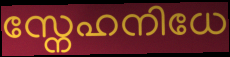
സ്നേഹനിധേ